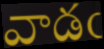
వాడఁ